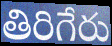
తిరిగేరు